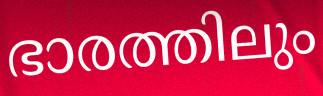
ഭാരത്തിലും